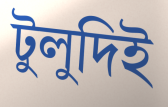
টুলুদিই